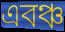
এবঞ্চ